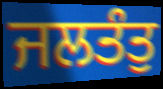
ਜਲਤੰਤੁ